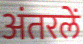
अंतरलें